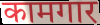
कामगार